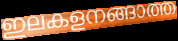
ഇലകളനങ്ങാത്ത